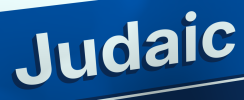
Judaic